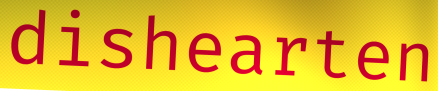
dishearten